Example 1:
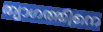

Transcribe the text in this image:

ത്യാഗത്തിനെ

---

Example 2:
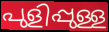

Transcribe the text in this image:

പുളിപ്പുള്ള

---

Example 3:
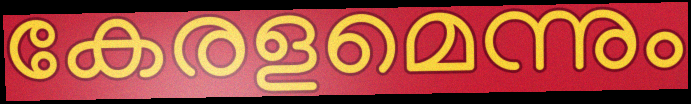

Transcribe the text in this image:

കേരളമെന്നും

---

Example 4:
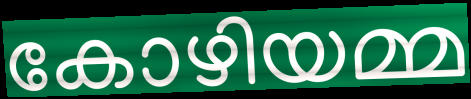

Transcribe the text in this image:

കോഴിയമ്മ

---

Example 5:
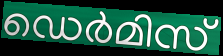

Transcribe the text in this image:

ഡെർമിസ്